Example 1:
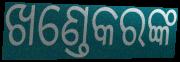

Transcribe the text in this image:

ଖଣ୍ଡେକରଙ୍କ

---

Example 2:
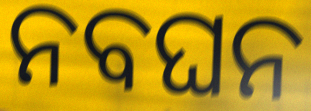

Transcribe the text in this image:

ନବଘନ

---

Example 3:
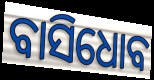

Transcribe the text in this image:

ବାସିଧୋବ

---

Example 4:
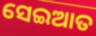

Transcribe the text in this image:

ସେଇଆତ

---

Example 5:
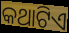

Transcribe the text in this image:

କଥାଟିଏ